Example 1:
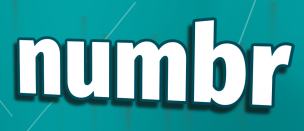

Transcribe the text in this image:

numbr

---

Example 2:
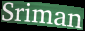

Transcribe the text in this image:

Sriman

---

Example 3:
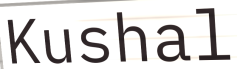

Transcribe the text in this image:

Kushal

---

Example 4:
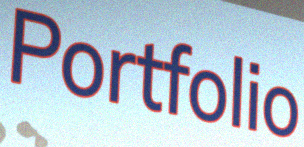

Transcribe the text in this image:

Portfolio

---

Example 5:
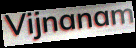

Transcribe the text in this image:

Vijnanam